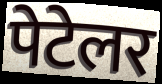
पेटेलर